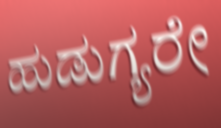
ಹುಡುಗ್ಯರೇ